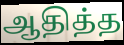
ஆதித்த